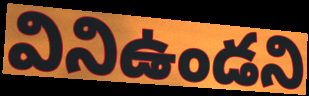
వినిఉండని